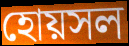
হোয়সল